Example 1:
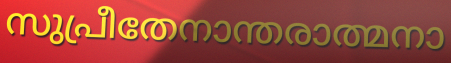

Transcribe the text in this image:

സുപ്രീതേനാന്തരാത്മനാ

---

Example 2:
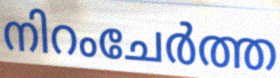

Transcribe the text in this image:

നിറംചേർത്ത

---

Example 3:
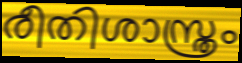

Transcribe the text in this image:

രീതിശാസ്ത്രം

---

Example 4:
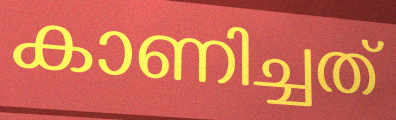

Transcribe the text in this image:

കാണിച്ചത്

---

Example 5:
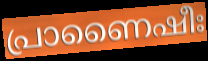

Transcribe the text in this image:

പ്രാണൈഷീഃ